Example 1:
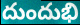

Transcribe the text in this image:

దుందుభి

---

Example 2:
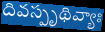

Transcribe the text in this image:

దివస్పృథివ్యాః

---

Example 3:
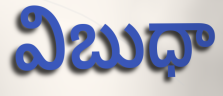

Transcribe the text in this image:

విబుధా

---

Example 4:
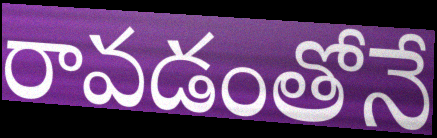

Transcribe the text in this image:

రావడంతోనే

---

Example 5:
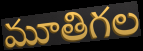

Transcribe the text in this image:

మూతిగల